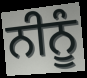
ਨੀਨੂੰ